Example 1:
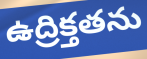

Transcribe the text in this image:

ఉద్రిక్తతను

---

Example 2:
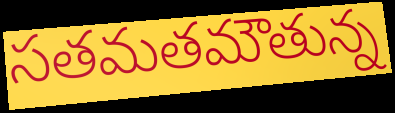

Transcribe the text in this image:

సతమతమౌతున్న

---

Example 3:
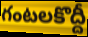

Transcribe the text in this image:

గంటలకొద్దీ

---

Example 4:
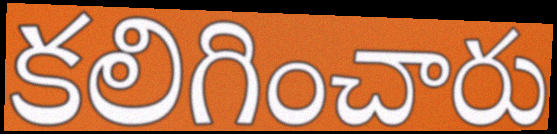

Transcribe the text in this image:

కలిగించారు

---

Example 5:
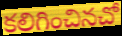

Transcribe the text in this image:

కలిగించినచో